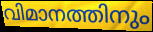
വിമാനത്തിനും